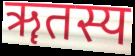
ॠतस्य